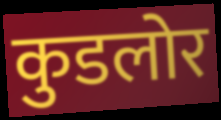
कुडलोर